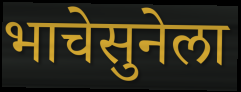
भाचेसुनेला